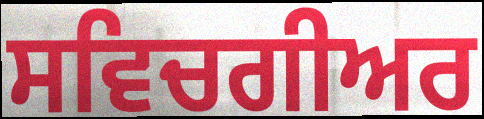
ਸਵਿਚਗੀਅਰ